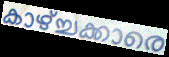
കാഴ്ച്ചക്കാരെ